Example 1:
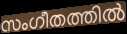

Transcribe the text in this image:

സംഗീതത്തിൽ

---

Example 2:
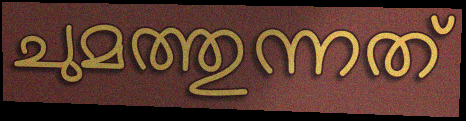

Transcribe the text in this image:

ചുമത്തുന്നത്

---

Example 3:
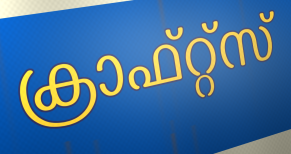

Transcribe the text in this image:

ക്രാഫ്റ്റ്സ്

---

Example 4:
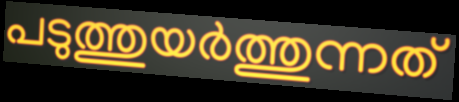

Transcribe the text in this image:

പടുത്തുയർത്തുന്നത്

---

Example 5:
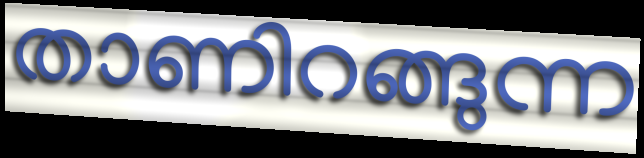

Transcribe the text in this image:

താണിറങ്ങുന്ന